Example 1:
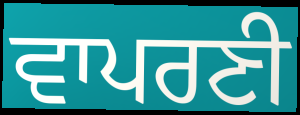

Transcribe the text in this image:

ਵਾਪਰਣੀ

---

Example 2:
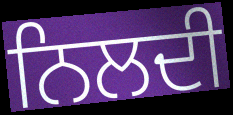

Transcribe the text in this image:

ਨਿਲਦੀ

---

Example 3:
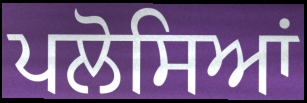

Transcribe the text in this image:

ਪਲੋਸਿਆਂ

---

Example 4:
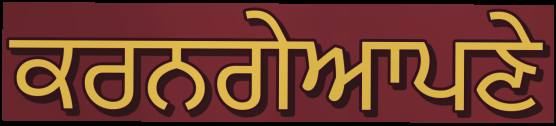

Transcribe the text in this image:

ਕਰਨਗੇਆਪਣੇ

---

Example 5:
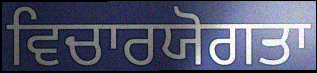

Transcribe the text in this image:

ਵਿਚਾਰਯੋਗਤਾ